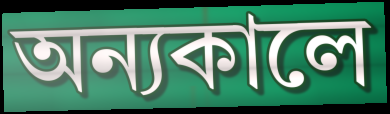
অন্যকালে